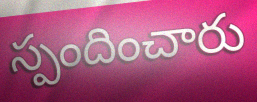
స్పందించారు